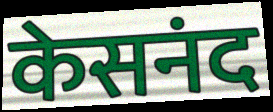
केसनंद